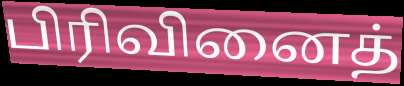
பிரிவினைத்